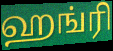
ஹங்ரி